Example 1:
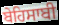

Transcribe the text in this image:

ਬੇਹਿਸਾਬੀ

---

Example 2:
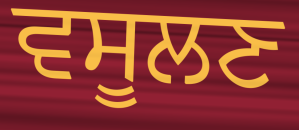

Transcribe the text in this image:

ਵਸੂਲਣ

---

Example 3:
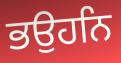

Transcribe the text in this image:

ਭਉਹਨਿ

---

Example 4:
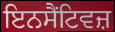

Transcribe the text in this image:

ਇਨਸੈਂਟਿਵਜ਼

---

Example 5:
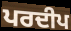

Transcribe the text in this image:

ਪਰਦੀਪ